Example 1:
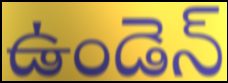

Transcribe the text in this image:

ఉండెన్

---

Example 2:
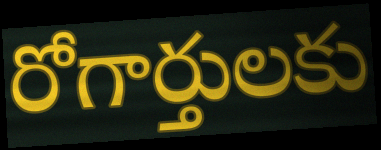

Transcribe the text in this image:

రోగార్తులకు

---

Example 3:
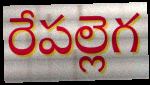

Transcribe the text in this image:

రేపల్లెగ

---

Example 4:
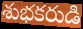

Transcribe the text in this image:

శుభకరుడి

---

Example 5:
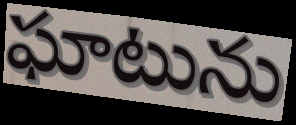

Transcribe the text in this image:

ఘాటును